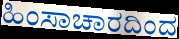
ಹಿಂಸಾಚಾರದಿಂದ